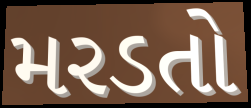
મરડતો